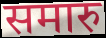
समारु